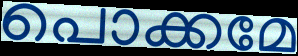
പൊക്കമേ